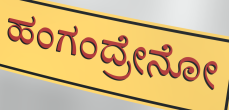
ಹಂಗಂದ್ರೇನೋ